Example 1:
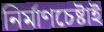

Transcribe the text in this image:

নির্মাণচেষ্টাই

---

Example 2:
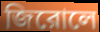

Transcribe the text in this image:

জিরোলে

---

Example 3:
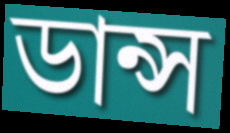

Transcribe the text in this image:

ডান্স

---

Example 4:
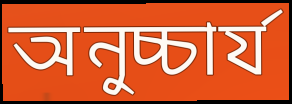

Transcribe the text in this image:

অনুচ্চার্য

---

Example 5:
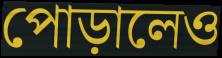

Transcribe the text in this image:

পোড়ালেও